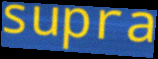
supra